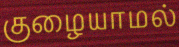
குழையாமல்